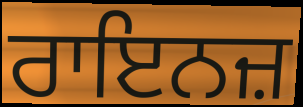
ਰਾਇਨਜ਼